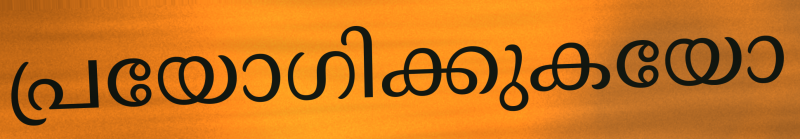
പ്രയോഗിക്കുകയോ